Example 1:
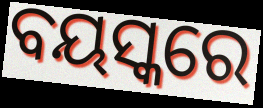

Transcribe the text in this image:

ବୟସ୍କରେ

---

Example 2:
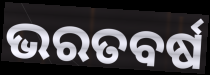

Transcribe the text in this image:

ଭରତବର୍ଷ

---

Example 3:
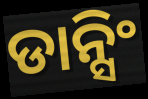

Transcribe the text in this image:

ଡାନ୍ସିଂ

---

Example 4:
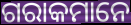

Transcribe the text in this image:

ଗରାକମାନେ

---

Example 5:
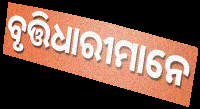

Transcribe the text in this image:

ବୃତ୍ତିଧାରୀମାନେ